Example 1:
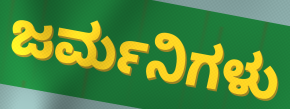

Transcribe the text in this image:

ಜರ್ಮನಿಗಳು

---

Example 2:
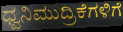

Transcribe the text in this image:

ಧ್ವನಿಮುದ್ರಿಕೆಗಳಿಗೆ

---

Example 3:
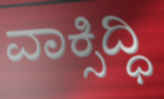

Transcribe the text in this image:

ವಾಕ್ಸಿದ್ಧಿ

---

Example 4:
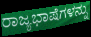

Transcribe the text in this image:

ರಾಜ್ಯಭಾಷೆಗಳನ್ನು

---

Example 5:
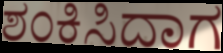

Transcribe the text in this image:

ಶಂಕಿಸಿದಾಗ